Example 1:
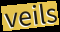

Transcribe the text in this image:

veils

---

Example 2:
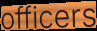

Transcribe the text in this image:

officers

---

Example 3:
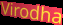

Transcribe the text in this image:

Virodha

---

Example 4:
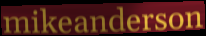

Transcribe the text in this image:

mikeanderson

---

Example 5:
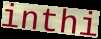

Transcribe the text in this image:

inthi